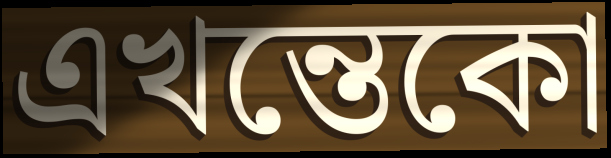
এখন্তেকো